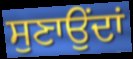
ਸੁਣਾਉਂਦਾਂ